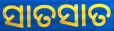
ସାତସାତ